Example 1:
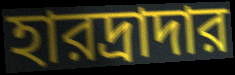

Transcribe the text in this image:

হারদ্রাদার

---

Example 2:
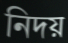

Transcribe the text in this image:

নিদয়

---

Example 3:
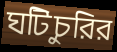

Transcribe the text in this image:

ঘটিচুরির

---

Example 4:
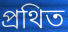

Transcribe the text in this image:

প্রথিত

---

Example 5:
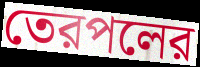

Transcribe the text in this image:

তেরপলের